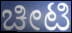
ಚೀಟಿ